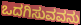
ಒದಗಿಸುವವನು